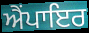
ਐੰਪਾਇਰ